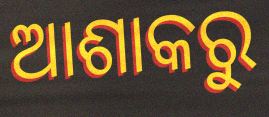
ଆଶାକରୁ